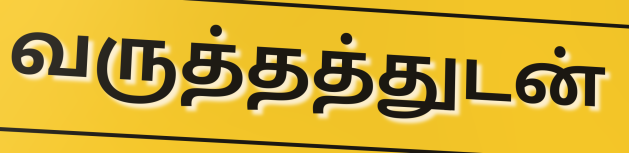
வருத்தத்துடன்